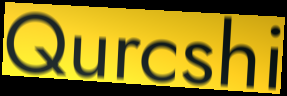
Qurcshi